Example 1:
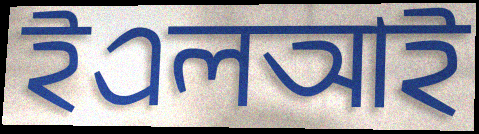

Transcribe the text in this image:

ইএলআই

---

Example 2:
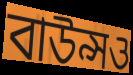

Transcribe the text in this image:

বাউন্সও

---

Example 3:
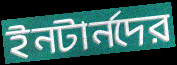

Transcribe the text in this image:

ইনটার্নদের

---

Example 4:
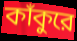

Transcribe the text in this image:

কাঁকুরে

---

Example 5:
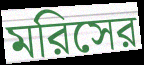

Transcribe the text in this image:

মরিসের